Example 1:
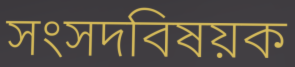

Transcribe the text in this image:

সংসদবিষয়ক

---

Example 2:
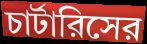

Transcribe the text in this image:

চার্টারিসের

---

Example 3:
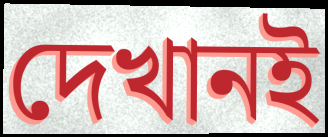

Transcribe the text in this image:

দেখানই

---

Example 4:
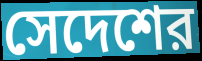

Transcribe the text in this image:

সেদেশের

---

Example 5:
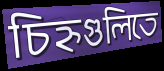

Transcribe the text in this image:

চিহ্নগুলিতে